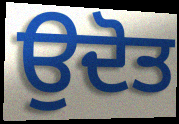
ਉਦੋਤ